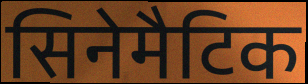
सिनेमैटिक